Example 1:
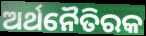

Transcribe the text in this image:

ଅର୍ଥନୈତିରକ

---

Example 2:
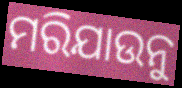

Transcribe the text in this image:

ମରିଯାଉନୁ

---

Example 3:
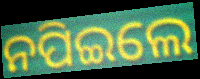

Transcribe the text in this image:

ନପିଇଲେ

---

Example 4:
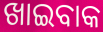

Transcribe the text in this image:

ଖାଇବାକ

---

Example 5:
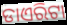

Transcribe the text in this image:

ଡାଏରିଟା